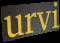
urvi